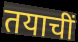
तयाचीं